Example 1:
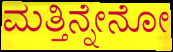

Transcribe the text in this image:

ಮತ್ತಿನ್ನೇನೋ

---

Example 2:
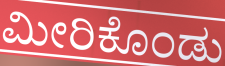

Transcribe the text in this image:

ಮೀರಿಕೊಂಡು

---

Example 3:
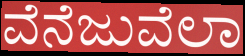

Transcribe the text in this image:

ವೆನೆಜುವೆಲಾ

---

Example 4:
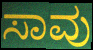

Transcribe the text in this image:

ಸಾವು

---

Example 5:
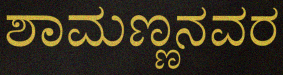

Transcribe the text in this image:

ಶಾಮಣ್ಣನವರ